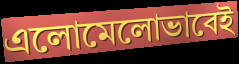
এলোমেলোভাবেই